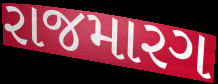
રાજમારગ